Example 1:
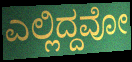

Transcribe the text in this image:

ಎಲ್ಲಿದ್ದವೋ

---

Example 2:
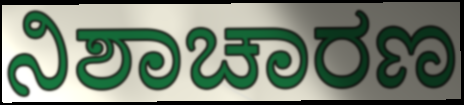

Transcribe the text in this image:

ನಿಶಾಚಾರಣ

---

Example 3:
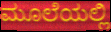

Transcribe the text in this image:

ಮೂಲೆಯಲ್ಲಿ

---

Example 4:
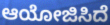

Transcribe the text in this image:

ಆಯೋಜಿಸಿದೆ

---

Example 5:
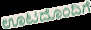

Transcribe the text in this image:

ಊಟದೊಂದಿಗೆ